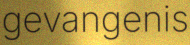
gevangenis